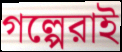
গল্পেরাই